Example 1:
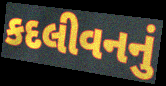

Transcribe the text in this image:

કદલીવનનું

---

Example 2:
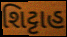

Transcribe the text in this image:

શિટ્ટાહ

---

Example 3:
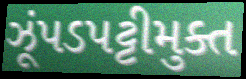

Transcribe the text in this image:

ઝૂંપડપટ્ટીમુક્ત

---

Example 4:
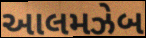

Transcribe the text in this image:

આલમઝેબ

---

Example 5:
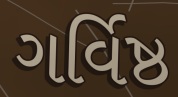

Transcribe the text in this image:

ગર્વિષ્ઠ